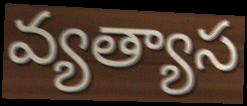
వ్యత్యాస